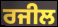
ਰਜੀਲ